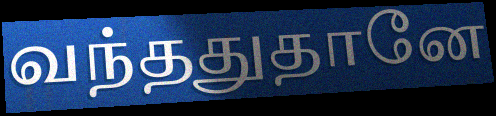
வந்ததுதானே